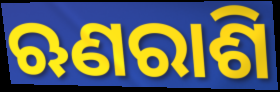
ଋଣରାଶି